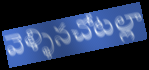
వెళ్ళినచోటల్లా